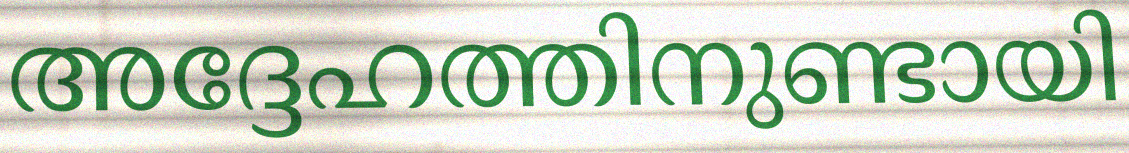
അദ്ദേഹത്തിനുണ്ടായി